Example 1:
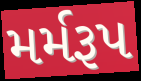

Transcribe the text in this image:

મર્મરૂપ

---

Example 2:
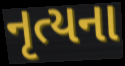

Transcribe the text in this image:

નૃત્યના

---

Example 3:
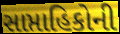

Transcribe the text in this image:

સાપ્તાહિકોની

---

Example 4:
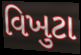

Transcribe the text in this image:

વિખુટા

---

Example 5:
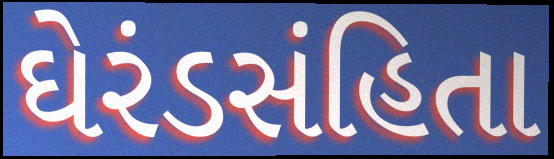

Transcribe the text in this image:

ઘેરંડસંહિતા